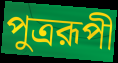
পুত্ররূপী